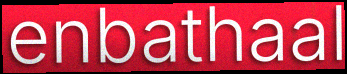
enbathaal